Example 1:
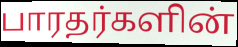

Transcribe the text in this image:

பாரதர்களின்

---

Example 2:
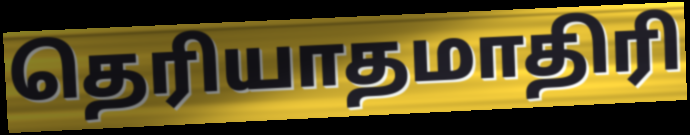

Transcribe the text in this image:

தெரியாதமாதிரி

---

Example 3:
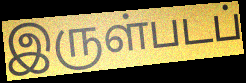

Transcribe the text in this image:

இருள்படப்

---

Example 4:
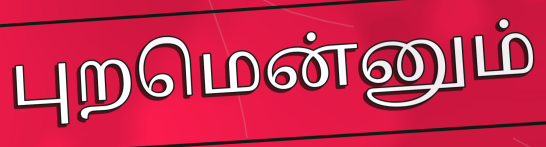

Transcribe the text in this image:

புறமென்னும்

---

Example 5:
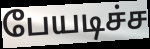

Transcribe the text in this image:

பேயடிச்ச